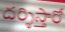
దర్శిస్తారో